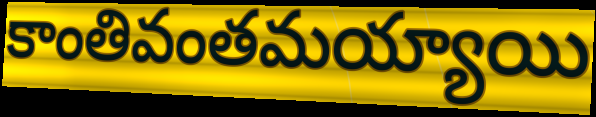
కాంతివంతమయ్యాయి